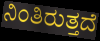
ನಿಂತಿರುತ್ತದೆ